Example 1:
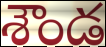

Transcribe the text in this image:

శౌండ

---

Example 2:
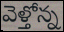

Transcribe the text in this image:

వెళ్తోన్న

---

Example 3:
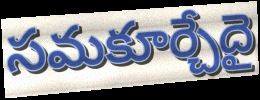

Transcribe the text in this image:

సమకూర్చేదై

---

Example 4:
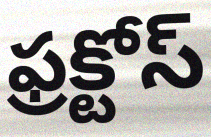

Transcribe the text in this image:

ఫ్రక్టోస్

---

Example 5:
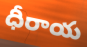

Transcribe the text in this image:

ధీరాయ